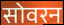
सोवरन